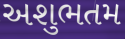
અશુભતમ